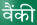
वैंकी